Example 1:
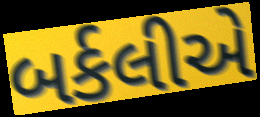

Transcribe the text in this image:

બર્કલીએ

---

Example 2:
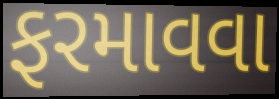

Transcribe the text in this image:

ફરમાવવા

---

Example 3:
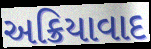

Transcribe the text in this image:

અક્રિયાવાદ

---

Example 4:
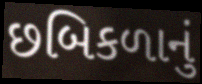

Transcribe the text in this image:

છબિકળાનું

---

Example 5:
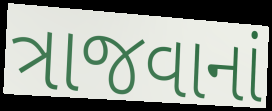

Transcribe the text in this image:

ત્રાજવાનાં